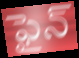
ఫైన్